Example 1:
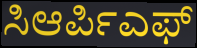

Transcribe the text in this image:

ಸಿಆರ್ಪಿಎಫ್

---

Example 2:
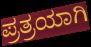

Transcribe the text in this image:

ಪ್ರತ್ರಯಾಗಿ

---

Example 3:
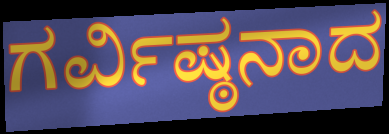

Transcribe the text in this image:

ಗರ್ವಿಷ್ಠನಾದ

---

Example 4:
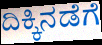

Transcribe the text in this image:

ದಿಕ್ಕಿನಡೆಗೆ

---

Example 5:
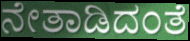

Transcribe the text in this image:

ನೇತಾಡಿದಂತೆ